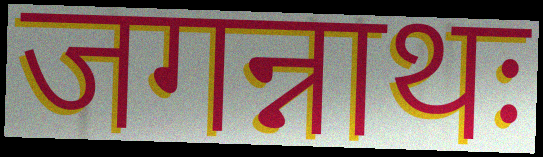
जगन्नाथः